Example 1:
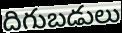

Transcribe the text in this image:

దిగుబడులు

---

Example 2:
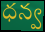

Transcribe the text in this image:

ధన్వ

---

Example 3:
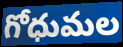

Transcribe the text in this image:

గోధుమల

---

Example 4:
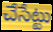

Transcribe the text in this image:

చేసేట్టు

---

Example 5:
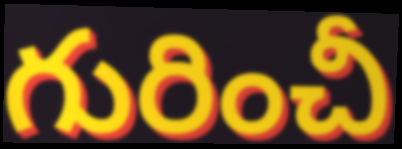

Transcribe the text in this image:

గురించీ